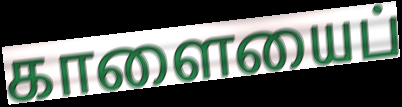
காளையைப்